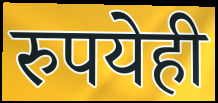
रुपयेही